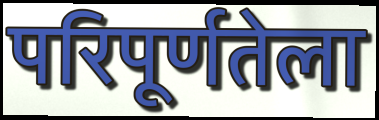
परिपूर्णतेला